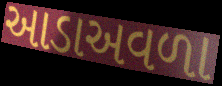
આડાઅવળા